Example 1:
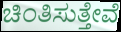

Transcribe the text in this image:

ಚಿಂತಿಸುತ್ತೇವೆ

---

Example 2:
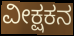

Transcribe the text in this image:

ವೀಕ್ಷಕನ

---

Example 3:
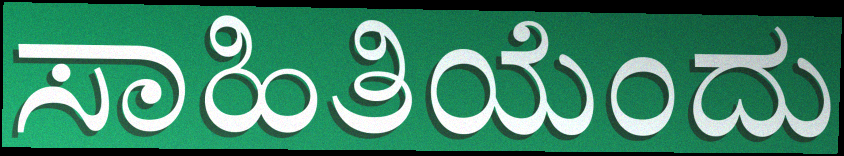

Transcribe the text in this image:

ಸಾಹಿತಿಯೆಂದು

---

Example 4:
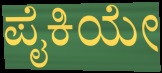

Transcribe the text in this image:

ಪೈಕಿಯೇ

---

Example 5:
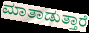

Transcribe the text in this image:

ಮಾತಾಡುತ್ತಾರೆ